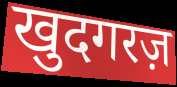
खुदगरज़